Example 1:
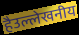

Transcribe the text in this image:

हैउल्लेखनीय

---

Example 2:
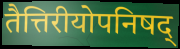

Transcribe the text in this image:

तैत्तिरीयोपनिषद्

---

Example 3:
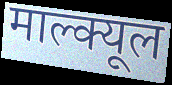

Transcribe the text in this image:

माल्क्यूल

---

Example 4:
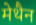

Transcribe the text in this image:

मेथैन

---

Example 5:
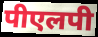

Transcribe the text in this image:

पीएलपी